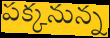
పక్కనున్న